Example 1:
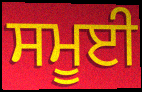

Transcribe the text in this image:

ਸਮੂਈ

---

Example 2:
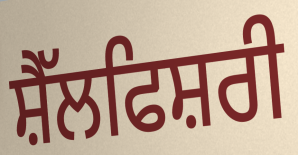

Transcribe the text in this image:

ਸ਼ੈੱਲਫਿਸ਼ਰੀ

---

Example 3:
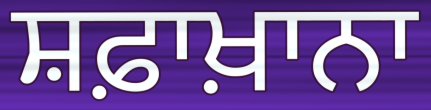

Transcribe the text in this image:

ਸ਼ਫ਼ਾਖ਼ਾਨਾ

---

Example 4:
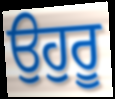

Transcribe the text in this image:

ਉਹੁਰੂ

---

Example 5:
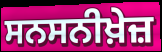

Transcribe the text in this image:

ਸਨਸਨੀਖ਼ੇਜ਼